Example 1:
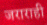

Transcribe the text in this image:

जराराही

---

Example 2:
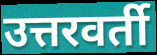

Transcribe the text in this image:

उत्तरवर्ती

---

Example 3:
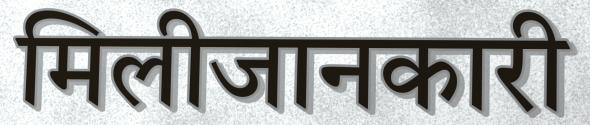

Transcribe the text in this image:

मिलीजानकारी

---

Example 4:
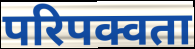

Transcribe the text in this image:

परिपक्वता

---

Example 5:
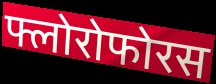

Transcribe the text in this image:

फ्लोरोफोरस